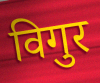
विगुर